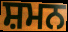
ਸ਼ਮਨ